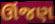
ઊંજણ